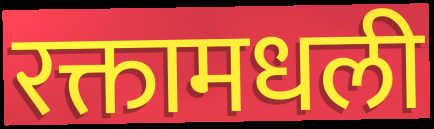
रक्तामधली